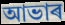
আভাৰ